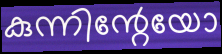
കുന്നിന്റേയോ